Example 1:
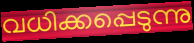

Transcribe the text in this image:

വധിക്കപ്പെടുന്നു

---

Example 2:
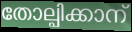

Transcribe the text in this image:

തോല്പിക്കാന്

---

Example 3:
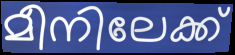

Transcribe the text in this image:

മീനിലേക്ക്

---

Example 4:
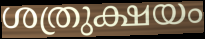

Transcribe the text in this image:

ശത്രുക്ഷയം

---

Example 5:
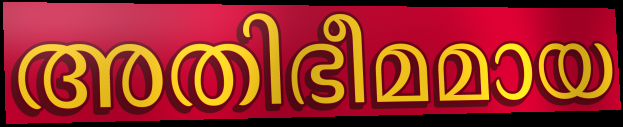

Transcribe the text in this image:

അതിഭീമമായ